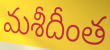
మశీదీంత